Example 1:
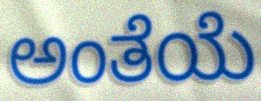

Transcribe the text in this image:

ಅಂತೆಯೆ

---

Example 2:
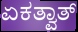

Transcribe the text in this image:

ಏಕತ್ವಾತ್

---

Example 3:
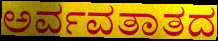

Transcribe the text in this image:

ಅರ್ವವತಾತದ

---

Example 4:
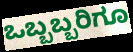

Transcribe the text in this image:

ಒಬ್ಬಬ್ಬರಿಗೂ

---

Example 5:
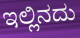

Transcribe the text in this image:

ಇಲ್ಲಿನದು